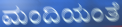
ಮಂದಿಯಂತೆ